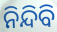
ନିନ୍ଦିବି